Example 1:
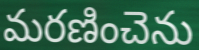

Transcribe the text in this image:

మరణించెను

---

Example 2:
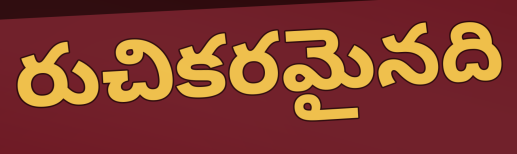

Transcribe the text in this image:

రుచికరమైనది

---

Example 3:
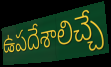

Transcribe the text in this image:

ఉపదేశాలిచ్చే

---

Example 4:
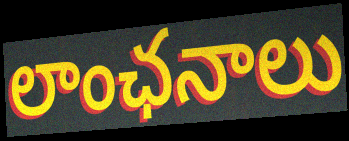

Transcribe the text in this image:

లాంఛనాలు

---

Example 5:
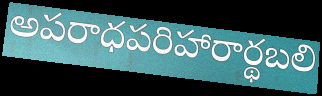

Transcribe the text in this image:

అపరాధపరిహారార్థబలి